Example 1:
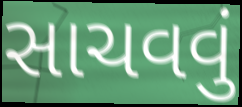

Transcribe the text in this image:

સાચવવું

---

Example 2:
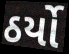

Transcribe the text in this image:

ઠર્યો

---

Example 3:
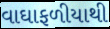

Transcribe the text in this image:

વાઘાફળીયાથી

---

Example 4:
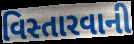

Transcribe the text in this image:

વિસ્તારવાની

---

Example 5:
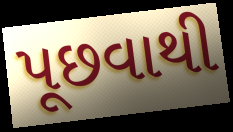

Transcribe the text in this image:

પૂછવાથી